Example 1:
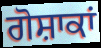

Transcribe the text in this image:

ਗੋਸ਼ਾਕਾਂ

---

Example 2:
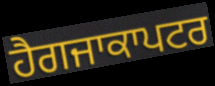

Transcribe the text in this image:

ਹੈਗਜਾਕਾਪਟਰ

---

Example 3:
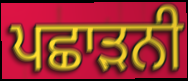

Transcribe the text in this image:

ਪਛਾੜਨੀ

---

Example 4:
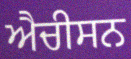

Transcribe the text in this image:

ਐਚੀਸਨ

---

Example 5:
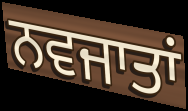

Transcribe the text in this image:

ਨਵਜਾਤਾਂ